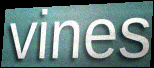
vines